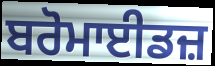
ਬਰੋਮਾਈਡਜ਼